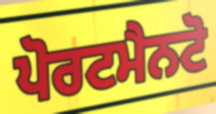
ਪੋਰਟਮੈਨਟੋ